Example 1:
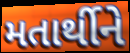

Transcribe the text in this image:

મતાર્થીને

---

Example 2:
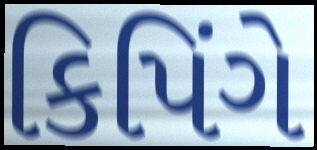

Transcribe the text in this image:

કિપિંગે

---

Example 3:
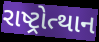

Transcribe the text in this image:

રાષ્ટ્રોત્થાન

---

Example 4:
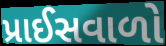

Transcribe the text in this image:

પ્રાઈસવાળો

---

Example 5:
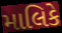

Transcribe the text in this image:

માલિકે